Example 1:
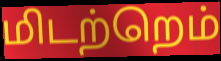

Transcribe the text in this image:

மிடற்றெம்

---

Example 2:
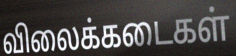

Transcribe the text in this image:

விலைக்கடைகள்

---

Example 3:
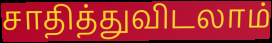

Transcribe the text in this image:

சாதித்துவிடலாம்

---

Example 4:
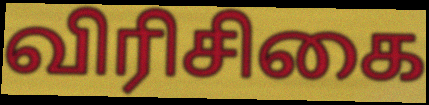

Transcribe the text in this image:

விரிசிகை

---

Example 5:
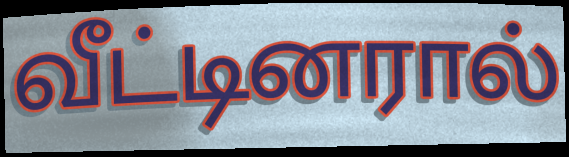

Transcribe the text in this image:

வீட்டினரால்